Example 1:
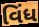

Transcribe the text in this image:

વિંધ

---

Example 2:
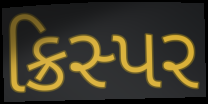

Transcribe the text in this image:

ક્રિસ્પર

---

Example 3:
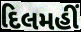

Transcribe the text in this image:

દિલમહીં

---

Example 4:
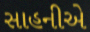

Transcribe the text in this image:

સાહનીએ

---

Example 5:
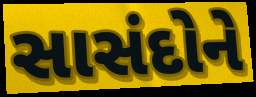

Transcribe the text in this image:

સાસંદોને